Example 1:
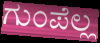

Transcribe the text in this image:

ಗುಂಪೆಲ್ಲ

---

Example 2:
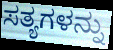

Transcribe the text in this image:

ಸತ್ಯಗಳನ್ನು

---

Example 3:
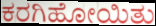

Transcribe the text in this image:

ಕರಗಿಹೋಯಿತು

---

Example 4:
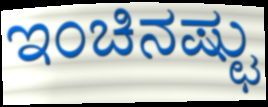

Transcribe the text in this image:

ಇಂಚಿನಷ್ಟು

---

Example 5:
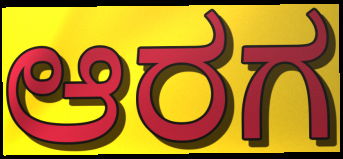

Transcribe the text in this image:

ಆರಗ